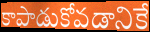
కాపాడుకోవడానికే